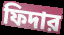
ফিদার